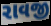
રાવજી